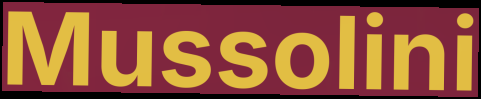
Mussolini